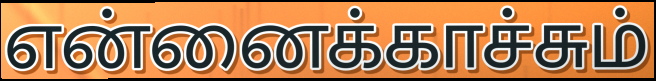
என்னைக்காச்சும்